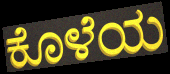
ಕೊಳೆಯ